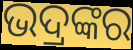
ଭଦ୍ରଙ୍କର